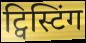
ट्विस्टिंग